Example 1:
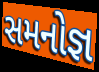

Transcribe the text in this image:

સમનોજ્ઞ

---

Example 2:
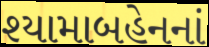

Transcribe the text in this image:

શ્યામાબહેનનાં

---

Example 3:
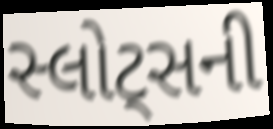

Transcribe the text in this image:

સ્લોટ્સની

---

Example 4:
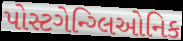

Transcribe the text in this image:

પોસ્ટગેન્ગ્લિઓનિક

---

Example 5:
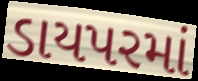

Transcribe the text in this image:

ડાયપરમાં